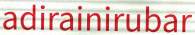
adirainirubar